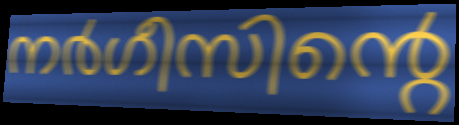
നർഗീസിന്റെ